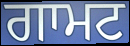
ਗਾਮਟ